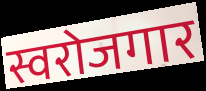
स्‍वरोजगार